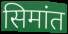
सिमांत